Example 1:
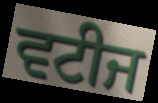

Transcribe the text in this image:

ਵਟੀਜ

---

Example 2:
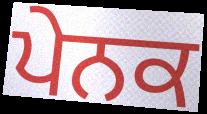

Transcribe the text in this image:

ਪੇਨਕ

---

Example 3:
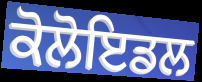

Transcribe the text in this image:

ਕੋਲੋਇਡਲ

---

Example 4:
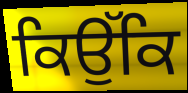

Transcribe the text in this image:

ਕਿਉੱਕਿ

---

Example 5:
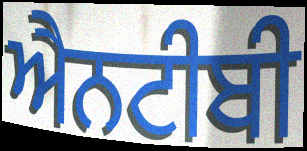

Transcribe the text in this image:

ਐਨਟੀਬੀ